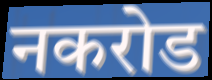
नकरोड